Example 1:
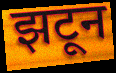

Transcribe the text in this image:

झटून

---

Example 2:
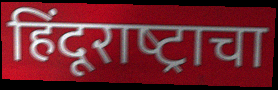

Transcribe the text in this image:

हिंदूराष्ट्राचा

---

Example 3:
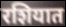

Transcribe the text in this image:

रशियात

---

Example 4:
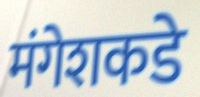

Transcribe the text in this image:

मंगेशकडे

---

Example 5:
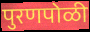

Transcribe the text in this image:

पुरणपोळी